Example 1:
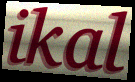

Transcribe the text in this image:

ikal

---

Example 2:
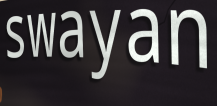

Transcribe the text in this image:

swayan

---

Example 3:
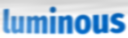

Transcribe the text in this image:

luminous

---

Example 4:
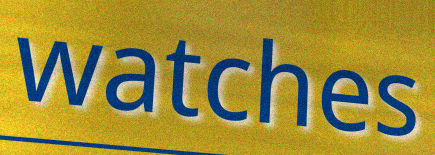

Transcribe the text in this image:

watches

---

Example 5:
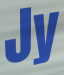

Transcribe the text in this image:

Jy